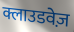
क्लाउडवेज़